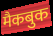
मैकबुक